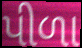
પીળા